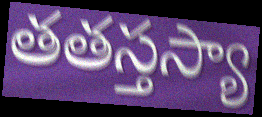
తతస్తస్యా